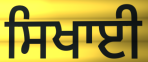
ਸਿਖਾਈ